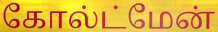
கோல்ட்மேன்